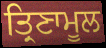
ਤ੍ਰਿਣਾਮੂਲ